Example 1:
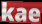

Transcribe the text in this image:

kae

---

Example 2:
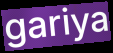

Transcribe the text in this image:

gariya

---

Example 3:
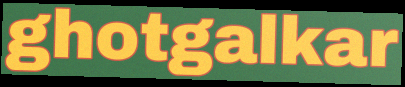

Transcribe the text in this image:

ghotgalkar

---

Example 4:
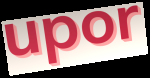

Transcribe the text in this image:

upor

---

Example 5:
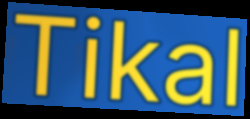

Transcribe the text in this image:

Tikal